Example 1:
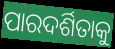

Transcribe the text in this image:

ପାରଦର୍ଶିତାକୁ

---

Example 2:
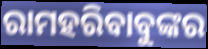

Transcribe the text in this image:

ରାମହରିବାବୁଙ୍କର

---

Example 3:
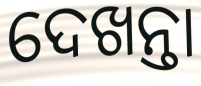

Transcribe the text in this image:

ଦେଖନ୍ତା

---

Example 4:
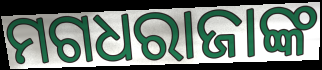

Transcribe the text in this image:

ମଗଧରାଜାଙ୍କ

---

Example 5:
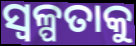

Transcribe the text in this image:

ସ୍ଵଳ୍ପତାକୁ